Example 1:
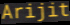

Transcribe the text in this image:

Arijit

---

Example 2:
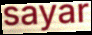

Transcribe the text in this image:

sayar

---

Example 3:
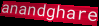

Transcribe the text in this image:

anandghare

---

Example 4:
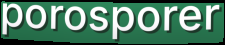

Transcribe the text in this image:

porosporer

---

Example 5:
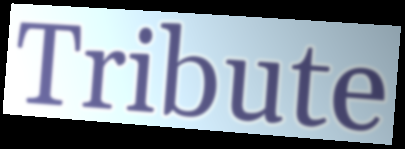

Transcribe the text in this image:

Tribute